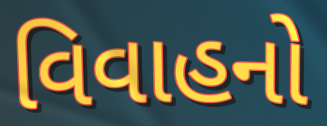
વિવાહનો